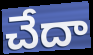
చేదా